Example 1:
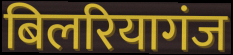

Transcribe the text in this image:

बिलरियागंज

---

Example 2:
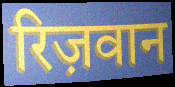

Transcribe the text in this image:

रिज़वान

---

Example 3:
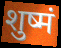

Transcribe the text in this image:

शुष्मं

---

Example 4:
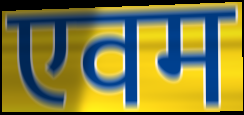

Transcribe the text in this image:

एवम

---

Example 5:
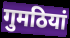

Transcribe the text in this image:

गुमठियां